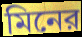
মিনের